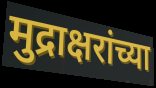
मुद्राक्षरांच्या